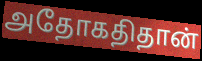
அதோகதிதான்